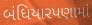
બંધિયારપણામાં